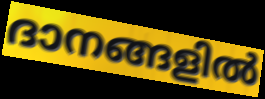
ദാനങ്ങളിൽ